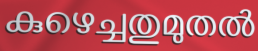
കുഴെച്ചതുമുതൽ